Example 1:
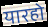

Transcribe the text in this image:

यारहो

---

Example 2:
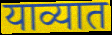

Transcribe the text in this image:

याव्यात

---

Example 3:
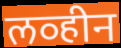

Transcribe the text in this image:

लव्हीन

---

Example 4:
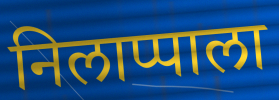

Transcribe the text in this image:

निलाप्पाला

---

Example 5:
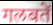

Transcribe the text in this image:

गलबतें